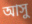
আসু